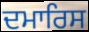
ਦਮਾਰਿਸ